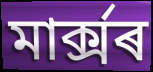
মাৰ্ক্সৰ